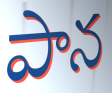
పాన